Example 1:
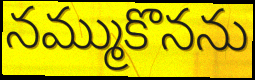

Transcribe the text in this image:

నమ్ముకొనను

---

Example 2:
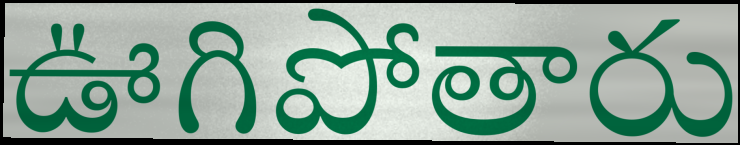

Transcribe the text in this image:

ఊగిపోతారు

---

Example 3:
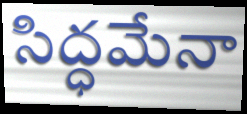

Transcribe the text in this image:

సిద్ధమేనా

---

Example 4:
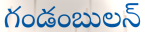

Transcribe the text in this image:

గండంబులన్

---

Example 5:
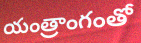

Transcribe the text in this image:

యంత్రాంగంతో